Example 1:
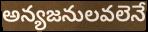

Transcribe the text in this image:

అన్యజనులవలెనే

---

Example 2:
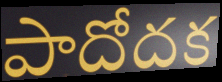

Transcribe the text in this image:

పాదోదక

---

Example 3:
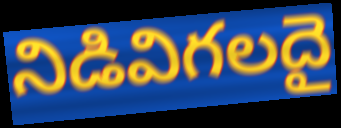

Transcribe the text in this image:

నిడివిగలదై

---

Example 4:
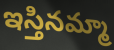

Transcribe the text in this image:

ఇస్తినమ్మా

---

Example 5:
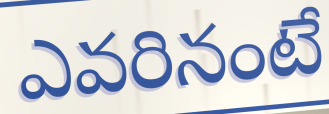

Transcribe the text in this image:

ఎవరినంటే